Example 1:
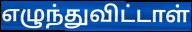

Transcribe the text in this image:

எழுந்துவிட்டாள்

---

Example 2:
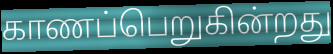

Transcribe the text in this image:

காணப்பெறுகின்றது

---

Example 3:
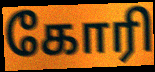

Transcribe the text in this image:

கோரி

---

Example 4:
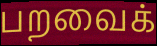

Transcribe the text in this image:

பறவைக்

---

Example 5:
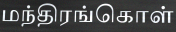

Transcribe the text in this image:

மந்திரங்கொள்